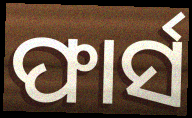
ଫାର୍ସ